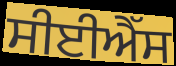
ਸੀਈਐੱਸ